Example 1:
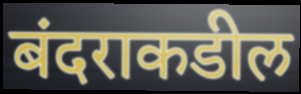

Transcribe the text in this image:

बंदराकडील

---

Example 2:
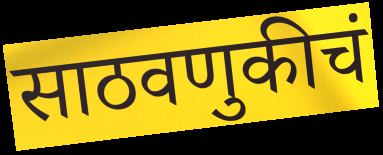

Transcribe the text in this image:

साठवणुकीचं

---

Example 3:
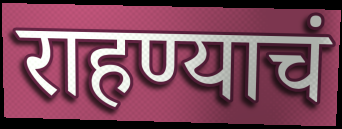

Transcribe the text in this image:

राहण्याचं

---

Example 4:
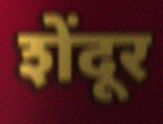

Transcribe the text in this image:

शेंदूर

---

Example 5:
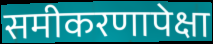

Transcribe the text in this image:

समीकरणापेक्षा